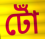
টোঁ